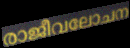
രാജീവലോചന